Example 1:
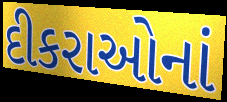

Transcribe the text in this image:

દીકરાઓનાં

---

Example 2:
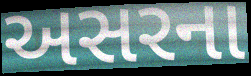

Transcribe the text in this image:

અસરના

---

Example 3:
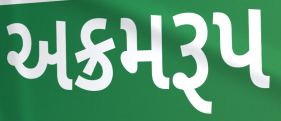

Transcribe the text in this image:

અક્રમરૂપ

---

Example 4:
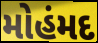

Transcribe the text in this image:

મોહંમદ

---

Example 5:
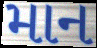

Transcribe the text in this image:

માન